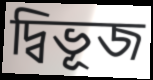
দ্বিভূজ